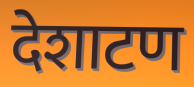
देशाटण